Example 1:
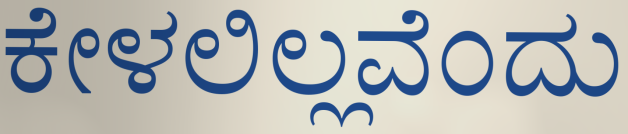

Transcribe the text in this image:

ಕೇಳಲಿಲ್ಲವೆಂದು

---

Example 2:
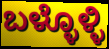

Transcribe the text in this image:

ಬಳ್ಳೊಳ್ಳಿ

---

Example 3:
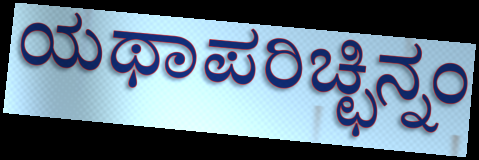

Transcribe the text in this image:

ಯಥಾಪರಿಚ್ಛಿನ್ನಂ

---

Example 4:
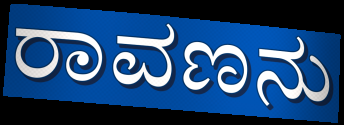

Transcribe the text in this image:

ರಾವಣನು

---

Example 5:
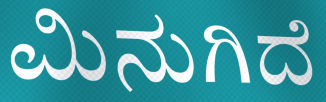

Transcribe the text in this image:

ಮಿನುಗಿದೆ